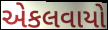
એકલવાયો